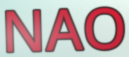
NAO